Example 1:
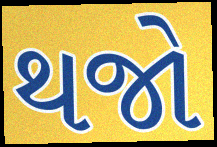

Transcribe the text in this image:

થજો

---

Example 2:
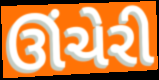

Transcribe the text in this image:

ઊંચેરી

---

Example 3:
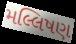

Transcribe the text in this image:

મલ્લિષણ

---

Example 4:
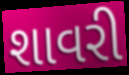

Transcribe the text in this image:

શાવરી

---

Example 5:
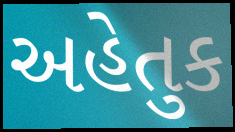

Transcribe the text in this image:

અહેતુક